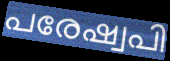
പരേഷ്വപി